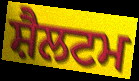
ਸ਼ੈਲਟਮ